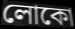
লোকো